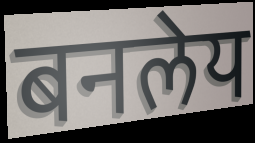
बनलेय